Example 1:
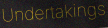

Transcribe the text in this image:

Undertakings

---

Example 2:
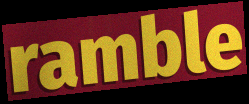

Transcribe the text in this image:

ramble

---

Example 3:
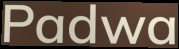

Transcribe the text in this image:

Padwa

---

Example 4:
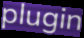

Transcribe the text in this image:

plugin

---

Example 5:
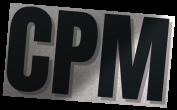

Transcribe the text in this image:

CPM